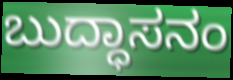
ಬುದ್ಧಾಸನಂ